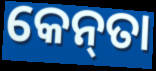
କେନ୍‌ତା